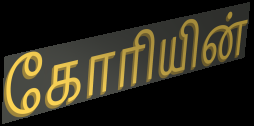
கோரியின்